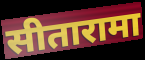
सीतारामा